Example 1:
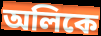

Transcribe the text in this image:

অলিকে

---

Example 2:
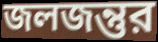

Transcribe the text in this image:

জলজন্তুর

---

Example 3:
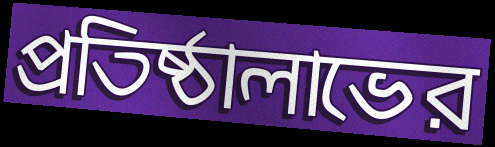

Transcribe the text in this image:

প্রতিষ্ঠালাভের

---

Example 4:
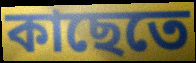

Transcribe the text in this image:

কাছেতে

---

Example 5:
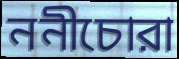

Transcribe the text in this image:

ননীচোরা